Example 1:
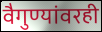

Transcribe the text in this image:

वैगुण्यांवरही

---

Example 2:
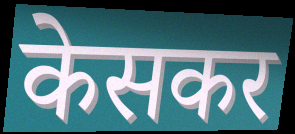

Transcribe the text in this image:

केसकर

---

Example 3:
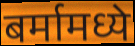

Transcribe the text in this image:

बर्मामध्ये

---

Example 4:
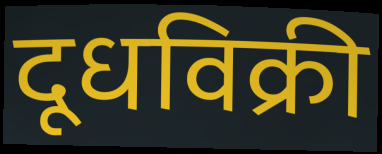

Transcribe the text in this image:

दूधविक्री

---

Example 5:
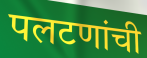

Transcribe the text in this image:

पलटणांची